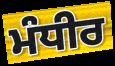
ਮੰਧੀਰ